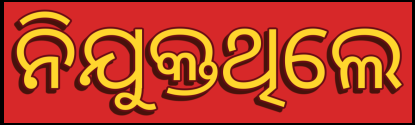
ନିଯୁକ୍ତଥିଲେ